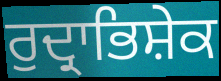
ਰੁਦ੍ਰਾਭਿਸ਼ੇਕ